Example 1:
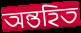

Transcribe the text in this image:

অন্তহিত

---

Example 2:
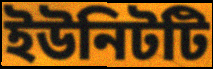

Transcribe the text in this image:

ইউনিটটি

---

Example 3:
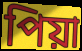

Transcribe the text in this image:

পিয়া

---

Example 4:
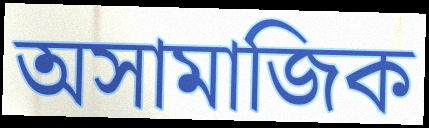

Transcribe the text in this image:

অসামাজিক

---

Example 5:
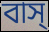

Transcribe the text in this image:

বাস্